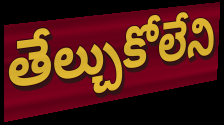
తేల్చుకోలేని